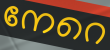
നേറെ